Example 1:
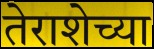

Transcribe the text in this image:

तेराशेच्या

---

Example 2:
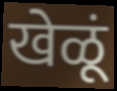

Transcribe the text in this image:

खेळूं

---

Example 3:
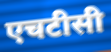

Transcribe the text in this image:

एचटीसी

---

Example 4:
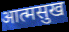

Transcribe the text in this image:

आत्मसुख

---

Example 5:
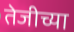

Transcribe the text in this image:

तेजीच्या